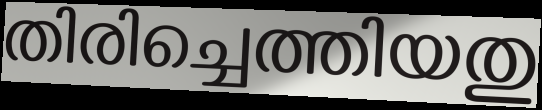
തിരിച്ചെത്തിയതു